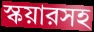
স্কয়ারসহ